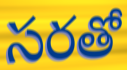
సరతో